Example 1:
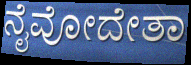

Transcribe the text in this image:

ನೈವೋದೇತಾ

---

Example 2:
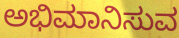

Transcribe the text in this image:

ಅಭಿಮಾನಿಸುವ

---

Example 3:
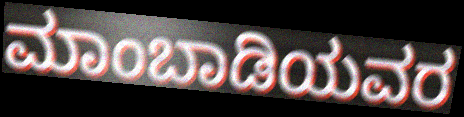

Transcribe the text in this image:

ಮಾಂಬಾಡಿಯವರ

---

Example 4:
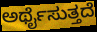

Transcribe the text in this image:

ಅರ್ಥೈಸುತ್ತದೆ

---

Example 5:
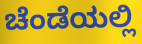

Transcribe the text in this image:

ಚೆಂಡೆಯಲ್ಲಿ